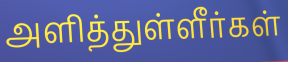
அளித்துள்ளீர்கள்